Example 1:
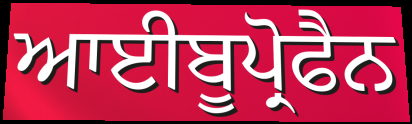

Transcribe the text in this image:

ਆਈਬੂਪ੍ਰੋਫੈਨ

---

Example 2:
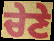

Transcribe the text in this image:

ਚੇਣੇ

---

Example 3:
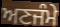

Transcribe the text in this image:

ਅਣਜੰਮੇ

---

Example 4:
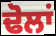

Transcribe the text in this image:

ਢੋਲਾਂ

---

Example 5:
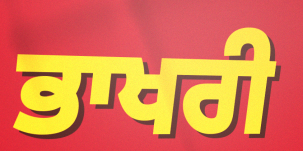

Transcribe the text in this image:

ਭਾਖਰੀ